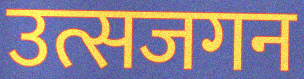
उत्सजगन